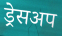
ड्रेसअप